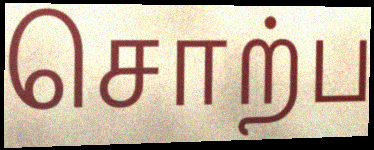
சொற்ப